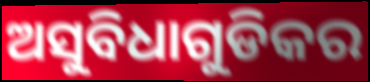
ଅସୁବିଧାଗୁଡିକର